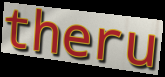
theru